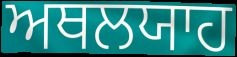
ਅਥਲਯਾਹ